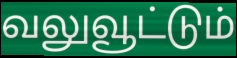
வலுவூட்டும்